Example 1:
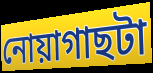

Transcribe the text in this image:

নোয়াগাছটা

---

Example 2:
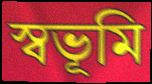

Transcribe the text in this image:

স্বভূমি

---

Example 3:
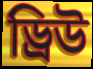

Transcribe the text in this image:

ড্রিউ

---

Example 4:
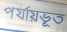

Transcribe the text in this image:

পর্যায়ভূত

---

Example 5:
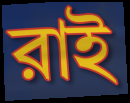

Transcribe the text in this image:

রাই